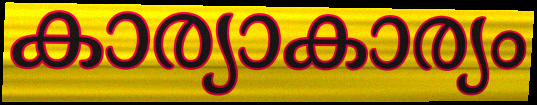
കാര്യാകാര്യം